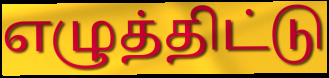
எழுத்திட்டு